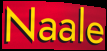
Naale